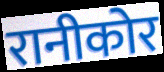
रानीकोर